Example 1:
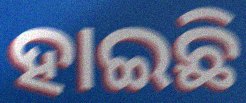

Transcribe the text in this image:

ହାଇଛି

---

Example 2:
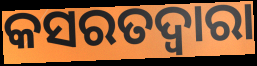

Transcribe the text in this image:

କସରତଦ୍ୱାରା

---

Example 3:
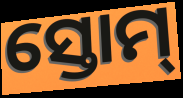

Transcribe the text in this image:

ସ୍ତୋମ୍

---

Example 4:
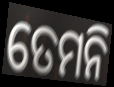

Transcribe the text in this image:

ତେମନି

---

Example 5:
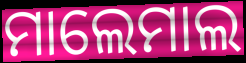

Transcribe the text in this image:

ମାଲେମାଲ